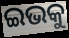
ଇଭକୁ